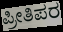
ಪ್ರೀತಿಪರ